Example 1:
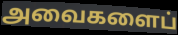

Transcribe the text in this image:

அவைகளைப்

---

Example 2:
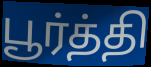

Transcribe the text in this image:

பூர்த்தி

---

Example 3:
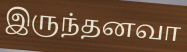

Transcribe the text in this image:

இருந்தனவா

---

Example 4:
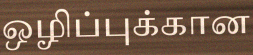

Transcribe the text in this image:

ஒழிப்புக்கான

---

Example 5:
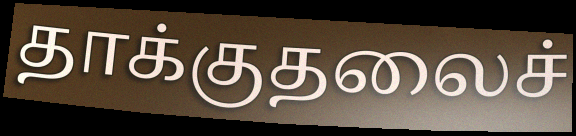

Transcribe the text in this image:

தாக்குதலைச்